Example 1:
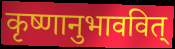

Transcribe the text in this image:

कृष्णानुभाववित्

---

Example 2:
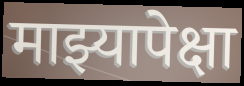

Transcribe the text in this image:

माझ्यापेक्षा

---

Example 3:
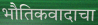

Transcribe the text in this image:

भौतिकवादाचा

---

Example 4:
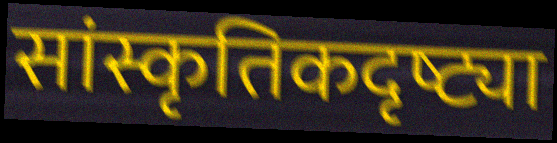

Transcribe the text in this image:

सांस्कृतिकदृष्ट्या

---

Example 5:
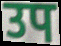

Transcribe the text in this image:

उप